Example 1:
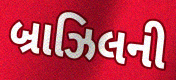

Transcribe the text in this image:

બ્રાઝિલની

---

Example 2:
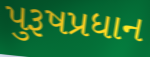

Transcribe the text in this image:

પુરૂષપ્રધાન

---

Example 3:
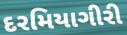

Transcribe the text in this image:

દરમિયાગીરી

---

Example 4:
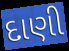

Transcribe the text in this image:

દાણી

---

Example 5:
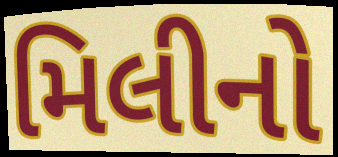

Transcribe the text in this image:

મિલીનો